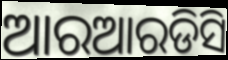
ଆରଆରଡିସି